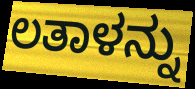
ಲತಾಳನ್ನು